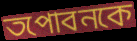
তপোবনকে